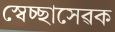
স্বেচ্ছাসেৱক